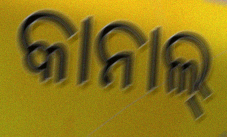
କାନାଲ୍